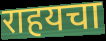
राहयचा